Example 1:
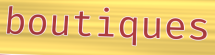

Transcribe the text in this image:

boutiques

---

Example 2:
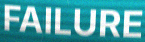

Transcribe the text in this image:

FAILURE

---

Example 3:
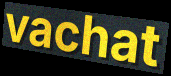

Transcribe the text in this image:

vachat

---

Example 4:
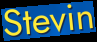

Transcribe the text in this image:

Stevin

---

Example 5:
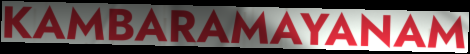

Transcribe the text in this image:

KAMBARAMAYANAM